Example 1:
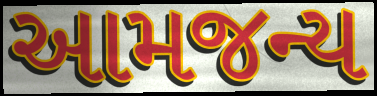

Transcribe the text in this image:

આમજન્ય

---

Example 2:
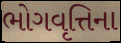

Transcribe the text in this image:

ભોગવૃત્તિના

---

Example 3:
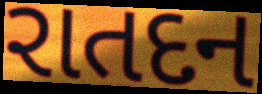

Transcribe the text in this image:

રાતદન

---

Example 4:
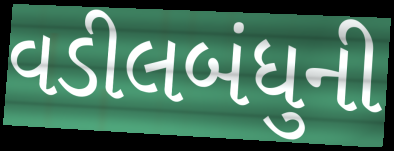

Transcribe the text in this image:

વડીલબંધુની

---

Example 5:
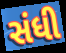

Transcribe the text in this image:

સંધી